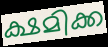
ക്ഷമിക്ക